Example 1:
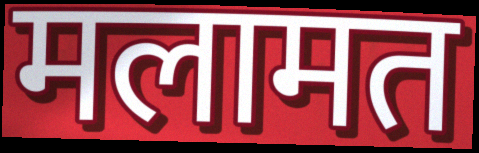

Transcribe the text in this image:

मलामत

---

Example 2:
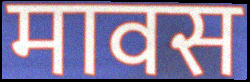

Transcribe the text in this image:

मावस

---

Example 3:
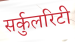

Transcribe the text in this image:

सर्कुलरिटी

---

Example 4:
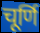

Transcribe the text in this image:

चूर्णि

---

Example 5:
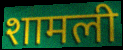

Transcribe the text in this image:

शामली